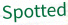
Spotted